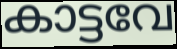
കാട്ടവേ